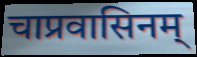
चाप्रवासिनम्